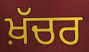
ਖ਼ੱਚਰ